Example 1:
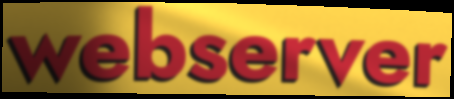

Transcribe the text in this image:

webserver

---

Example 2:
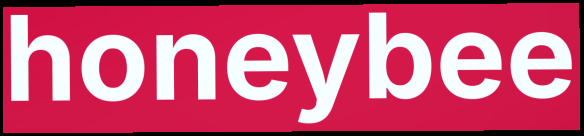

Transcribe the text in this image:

honeybee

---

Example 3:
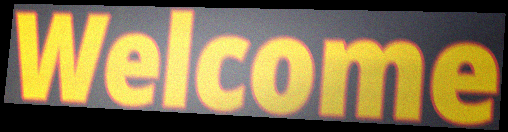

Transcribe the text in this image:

Welcome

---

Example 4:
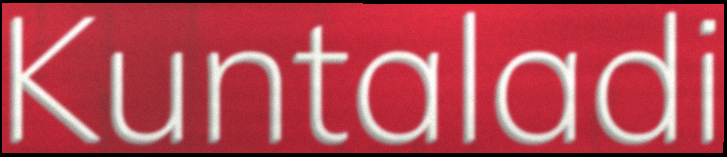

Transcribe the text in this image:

Kuntaladi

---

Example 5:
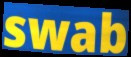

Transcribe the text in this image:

swab